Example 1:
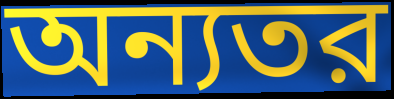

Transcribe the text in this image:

অন্যতর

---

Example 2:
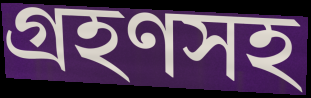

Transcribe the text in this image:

গ্রহণসহ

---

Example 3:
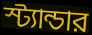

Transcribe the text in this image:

স্ট্যান্ডার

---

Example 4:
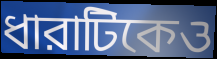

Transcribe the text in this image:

ধারাটিকেও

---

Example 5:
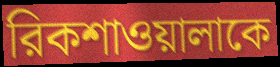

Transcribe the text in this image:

রিকশাওয়ালাকে